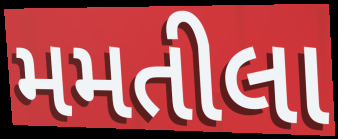
મમતીલા